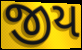
જીય